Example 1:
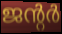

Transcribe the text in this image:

ജന്റർ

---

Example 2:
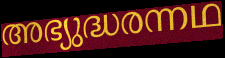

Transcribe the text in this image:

അഭ്യുദ്ധരന്നഥ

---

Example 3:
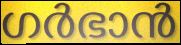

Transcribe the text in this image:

ഗർഭാൻ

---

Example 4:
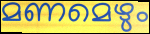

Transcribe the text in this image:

മണമെഴും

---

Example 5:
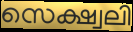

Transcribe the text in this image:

സെക്ഷ്വലി